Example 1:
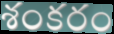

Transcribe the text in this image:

శంకరం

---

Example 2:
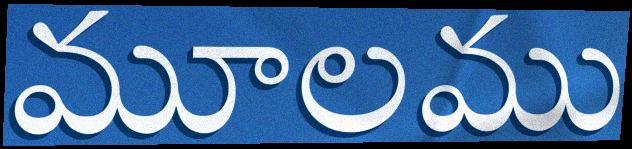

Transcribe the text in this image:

మూలము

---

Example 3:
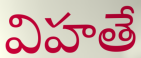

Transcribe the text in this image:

విహతే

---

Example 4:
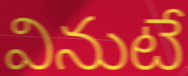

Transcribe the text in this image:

వినుటే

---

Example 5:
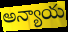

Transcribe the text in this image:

అన్యాయ